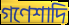
গণেশাদি